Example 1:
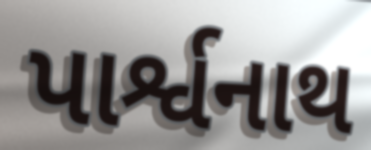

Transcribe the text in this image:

પાર્શ્વનાથ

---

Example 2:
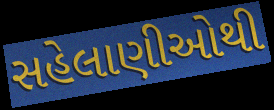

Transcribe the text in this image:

સહેલાણીઓથી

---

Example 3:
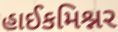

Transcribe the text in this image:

હાઈકમિશ્નર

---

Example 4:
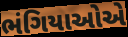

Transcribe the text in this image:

ભંગિયાઓએ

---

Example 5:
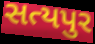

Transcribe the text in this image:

સત્યપુર